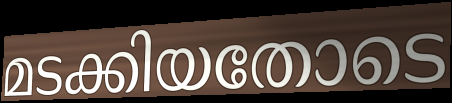
മടക്കിയതോടെ